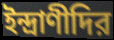
ইন্দ্রাণীদির